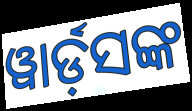
ୱାର୍ଡ଼ସଙ୍କ